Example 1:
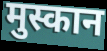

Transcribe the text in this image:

मुस्कान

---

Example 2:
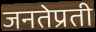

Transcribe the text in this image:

जनतेप्रती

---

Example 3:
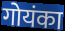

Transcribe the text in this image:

गोयंका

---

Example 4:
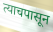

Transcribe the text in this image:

त्याचपासून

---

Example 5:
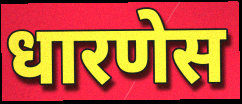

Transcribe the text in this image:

धारणेस